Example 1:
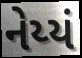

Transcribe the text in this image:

નેય્યં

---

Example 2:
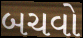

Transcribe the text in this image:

બચવો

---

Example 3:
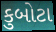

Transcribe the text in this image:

કુબોટા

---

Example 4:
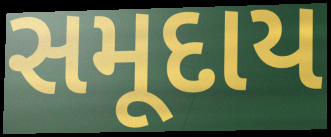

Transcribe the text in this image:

સમૂદાય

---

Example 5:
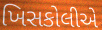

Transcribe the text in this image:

ખિસકોલીએ